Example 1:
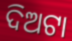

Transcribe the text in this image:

ଦିଅଟା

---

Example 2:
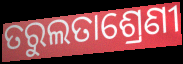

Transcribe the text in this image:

ତରୁଲତାଶ୍ରେଣୀ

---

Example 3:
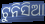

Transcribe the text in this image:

ଟୁନିସିଆ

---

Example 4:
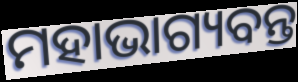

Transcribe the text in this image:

ମହାଭାଗ୍ୟବନ୍ତ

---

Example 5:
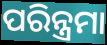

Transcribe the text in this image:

ପରିନ୍ତ୍ରମା